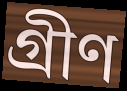
গ্ৰীণ